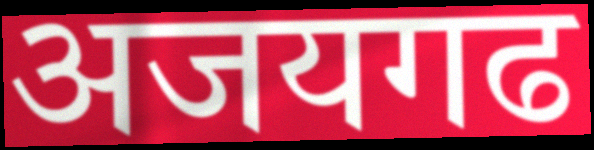
अजयगढ